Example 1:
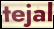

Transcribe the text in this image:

tejal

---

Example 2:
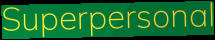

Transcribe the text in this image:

Superpersonal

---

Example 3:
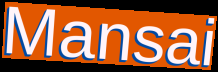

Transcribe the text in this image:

Mansai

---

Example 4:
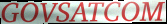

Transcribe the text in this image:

GOVSATCOM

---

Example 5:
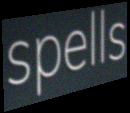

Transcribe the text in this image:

spells